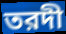
তরদী